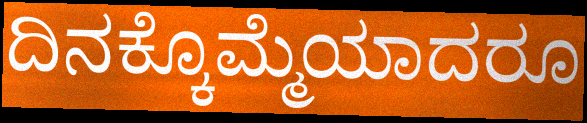
ದಿನಕ್ಕೊಮ್ಮೆಯಾದರೂ